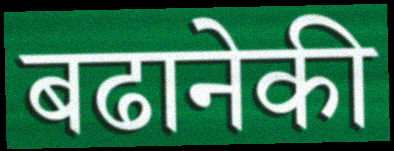
बढानेकी